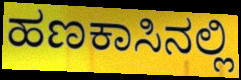
ಹಣಕಾಸಿನಲ್ಲಿ